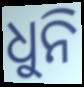
ଧୁନି